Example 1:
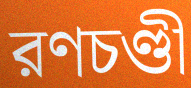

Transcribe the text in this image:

রণচণ্ডী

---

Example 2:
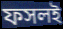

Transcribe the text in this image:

ফসলই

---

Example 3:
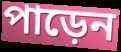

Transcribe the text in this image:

পাড়েন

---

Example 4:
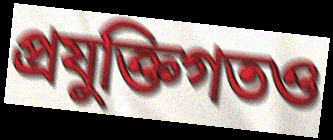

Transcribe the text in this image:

প্রযুক্তিগতও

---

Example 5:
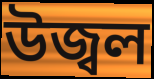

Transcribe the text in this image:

উজ্বল